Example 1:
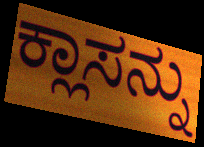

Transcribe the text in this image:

ಕ್ಲಾಸನ್ನು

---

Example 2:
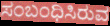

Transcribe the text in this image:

ಸಂಬಂಧಿಸಿರುವ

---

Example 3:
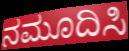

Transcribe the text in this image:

ನಮೂದಿಸಿ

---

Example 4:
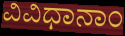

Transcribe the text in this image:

ವಿವಿಧಾನಾಂ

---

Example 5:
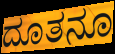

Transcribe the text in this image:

ದೂತನೂ